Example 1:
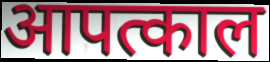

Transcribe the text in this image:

आपत्काल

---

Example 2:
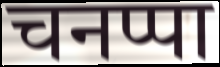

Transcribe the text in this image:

चनप्पा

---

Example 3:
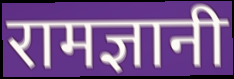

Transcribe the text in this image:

रामज्ञानी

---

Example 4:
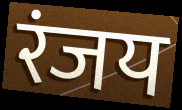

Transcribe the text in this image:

रंजय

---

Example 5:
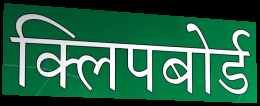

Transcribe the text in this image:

क्लिपबोर्ड